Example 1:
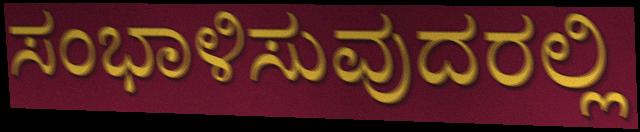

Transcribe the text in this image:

ಸಂಭಾಳಿಸುವುದರಲ್ಲಿ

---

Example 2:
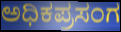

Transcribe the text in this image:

ಅಧಿಕಪ್ರಸಂಗ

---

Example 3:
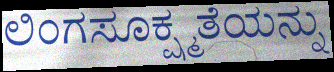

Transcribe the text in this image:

ಲಿಂಗಸೂಕ್ಷ್ಮತೆಯನ್ನು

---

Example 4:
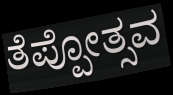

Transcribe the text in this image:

ತೆಪ್ಪೋತ್ಸವ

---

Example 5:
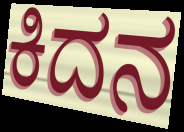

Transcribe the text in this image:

ಕಿದನ